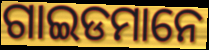
ଗାଇଡମାନେ